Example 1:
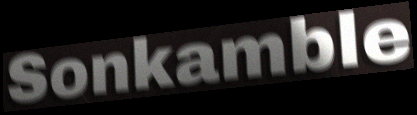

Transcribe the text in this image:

Sonkamble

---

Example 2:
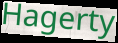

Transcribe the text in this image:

Hagerty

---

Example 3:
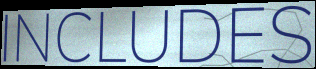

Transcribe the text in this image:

INCLUDES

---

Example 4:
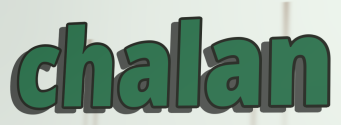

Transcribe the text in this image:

chalan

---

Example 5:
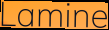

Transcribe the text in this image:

Lamine